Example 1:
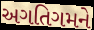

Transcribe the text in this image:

અગતિગમને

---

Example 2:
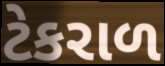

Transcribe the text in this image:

ટેકરાળ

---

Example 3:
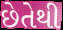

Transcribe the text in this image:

છેતેથી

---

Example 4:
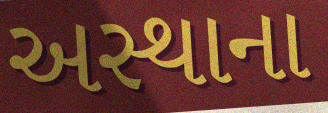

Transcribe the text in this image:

અસ્થાના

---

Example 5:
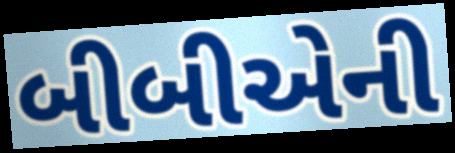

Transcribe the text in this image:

બીબીએની